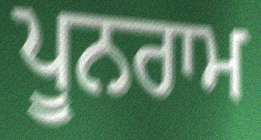
ਪੂਨਰਾਮ